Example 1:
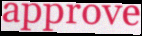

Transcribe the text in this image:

approve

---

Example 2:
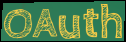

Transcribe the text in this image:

OAuth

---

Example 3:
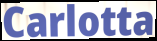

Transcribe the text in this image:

Carlotta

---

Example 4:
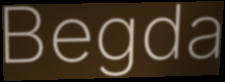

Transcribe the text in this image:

Begda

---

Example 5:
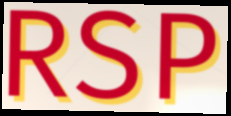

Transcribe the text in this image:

RSP